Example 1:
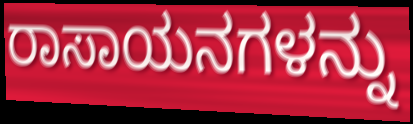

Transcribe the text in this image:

ರಾಸಾಯನಗಳನ್ನು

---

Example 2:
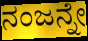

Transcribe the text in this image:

ನಂಜನ್ನೇ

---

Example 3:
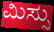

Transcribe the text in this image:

ಮಿಸ್ಸು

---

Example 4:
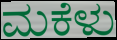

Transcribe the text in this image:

ಮಕೆಳು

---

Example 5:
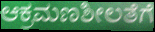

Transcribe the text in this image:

ಆಕ್ರಮಣಶೀಲತೆಗೆ